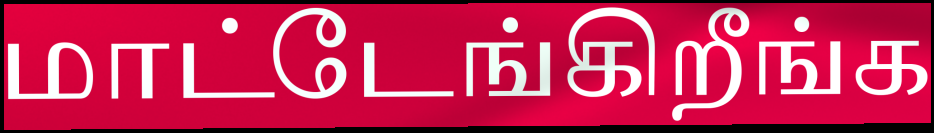
மாட்டேங்கிறீங்க